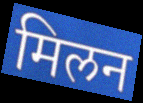
मिलन